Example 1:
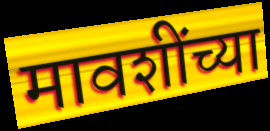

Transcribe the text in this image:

मावशींच्या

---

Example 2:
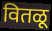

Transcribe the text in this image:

वितळू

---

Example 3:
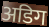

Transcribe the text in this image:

अडिग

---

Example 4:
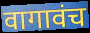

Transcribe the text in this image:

वागावंच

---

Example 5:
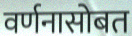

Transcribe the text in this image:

वर्णनासोबत